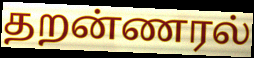
தறன்ணரல்